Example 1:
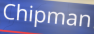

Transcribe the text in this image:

Chipman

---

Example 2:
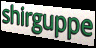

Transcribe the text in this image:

shirguppe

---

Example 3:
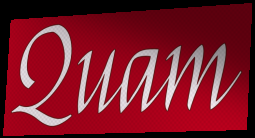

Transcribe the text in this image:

Quam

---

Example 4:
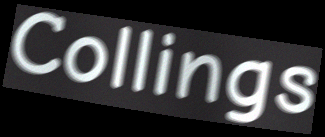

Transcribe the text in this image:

Collings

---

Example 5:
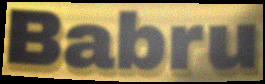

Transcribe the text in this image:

Babru